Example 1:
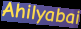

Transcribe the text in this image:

Ahilyabai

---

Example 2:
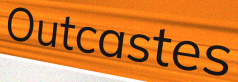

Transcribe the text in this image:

Outcastes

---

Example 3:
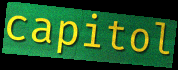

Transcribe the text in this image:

capitol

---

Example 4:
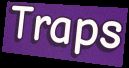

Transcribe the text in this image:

Traps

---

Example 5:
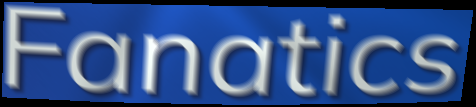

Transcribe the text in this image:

Fanatics